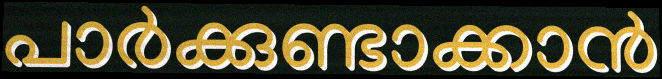
പാർക്കുണ്ടാക്കാൻ